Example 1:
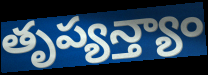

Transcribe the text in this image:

తృప్యన్త్యాం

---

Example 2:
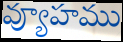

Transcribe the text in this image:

వ్యూహము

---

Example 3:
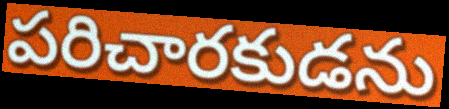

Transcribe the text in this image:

పరిచారకుడను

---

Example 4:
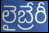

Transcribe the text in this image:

లైబ్రేరీ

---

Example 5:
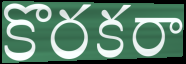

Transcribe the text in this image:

కొరకరా